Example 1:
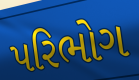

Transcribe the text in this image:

પરિભોગ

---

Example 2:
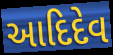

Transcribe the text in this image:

આદિદેવ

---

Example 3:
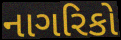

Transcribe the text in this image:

નાગરિકો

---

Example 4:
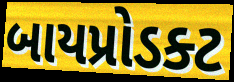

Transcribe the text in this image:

બાયપ્રોડક્ટ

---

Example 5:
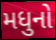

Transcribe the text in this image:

મધુનો